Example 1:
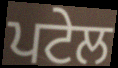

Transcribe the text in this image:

ਪਟੇਲ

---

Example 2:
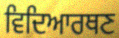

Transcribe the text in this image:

ਵਿਦਿਆਰਥਣ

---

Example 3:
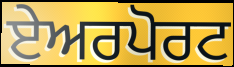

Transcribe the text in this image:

ਏਅਰਪੋਰਟ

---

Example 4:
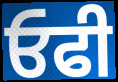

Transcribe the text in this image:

ਓਫੀ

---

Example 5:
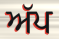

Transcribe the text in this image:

ਅੱਪ